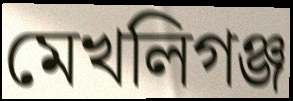
মেখলিগঞ্জ